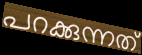
പറക്കുന്നത്